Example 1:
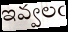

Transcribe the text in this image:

ఇవ్వలఁ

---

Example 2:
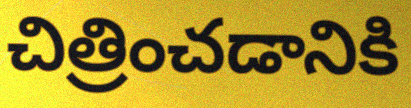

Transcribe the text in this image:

చిత్రించడానికి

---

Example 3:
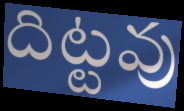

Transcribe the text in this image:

దిట్టవు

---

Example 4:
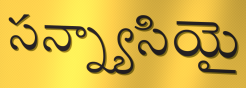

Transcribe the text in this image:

సన్న్యాసియై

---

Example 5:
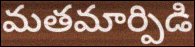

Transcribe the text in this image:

మతమార్పిడి